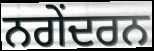
ਨਗੇਂਦਰਨ